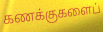
கணக்குகளைப்